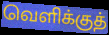
வெளிக்குத்